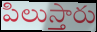
పిలుస్తారు